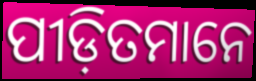
ପୀଡ଼ିତମାନେ